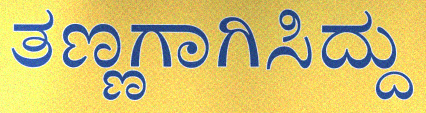
ತಣ್ಣಗಾಗಿಸಿದ್ದು